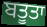
ਬਤੂਤਾ